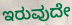
ಇರುವುದೇ